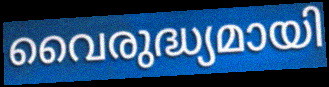
വൈരുദ്ധ്യമായി